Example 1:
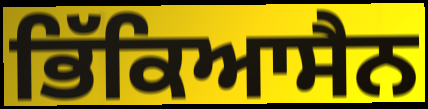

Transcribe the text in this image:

ਭਿੱਕਿਆਸੈਨ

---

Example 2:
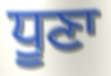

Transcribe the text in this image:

ਧੂਣਾ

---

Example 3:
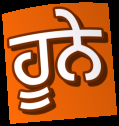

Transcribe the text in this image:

ਹੂਨੇ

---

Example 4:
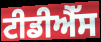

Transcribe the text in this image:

ਟੀਡੀਐੱਸ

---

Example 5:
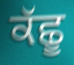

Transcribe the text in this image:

ਕੱਛੂ